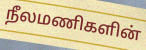
நீலமணிகளின்